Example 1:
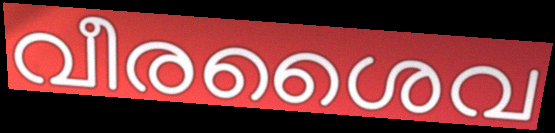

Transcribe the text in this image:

വീരശൈവ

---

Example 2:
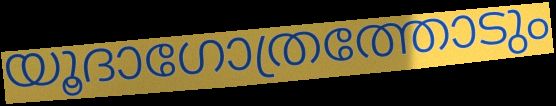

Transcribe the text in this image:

യൂദാഗോത്രത്തോടും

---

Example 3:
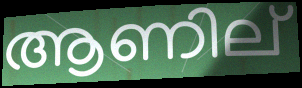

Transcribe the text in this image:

ആണില്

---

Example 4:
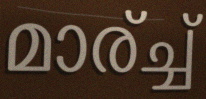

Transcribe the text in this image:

മാര്ച്ച്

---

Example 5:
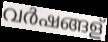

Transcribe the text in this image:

വർഷങ്ങള്